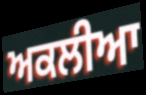
ਅਕਲੀਆ